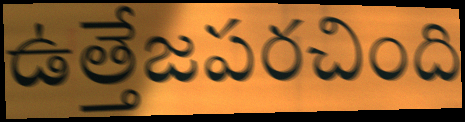
ఉత్తేజపరచింది